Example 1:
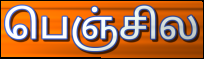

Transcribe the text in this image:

பெஞ்சில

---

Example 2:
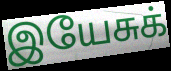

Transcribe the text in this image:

இயேசுக்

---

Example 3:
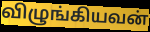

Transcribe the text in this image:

விழுங்கியவன்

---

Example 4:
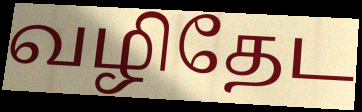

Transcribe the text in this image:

வழிதேட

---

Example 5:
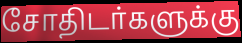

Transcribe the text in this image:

சோதிடர்களுக்கு